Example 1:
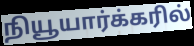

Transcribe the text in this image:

நியூயார்க்கரில்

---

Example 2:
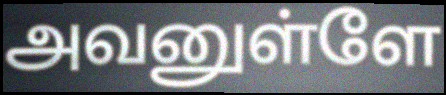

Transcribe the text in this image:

அவனுள்ளே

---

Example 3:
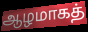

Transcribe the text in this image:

ஆழமாகத்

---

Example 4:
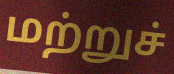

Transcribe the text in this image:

மற்றுச்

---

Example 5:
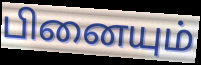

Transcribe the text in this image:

பினையும்